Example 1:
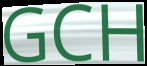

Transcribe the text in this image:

GCH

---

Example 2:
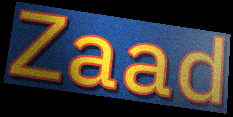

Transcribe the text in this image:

Zaad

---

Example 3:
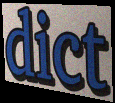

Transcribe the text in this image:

dict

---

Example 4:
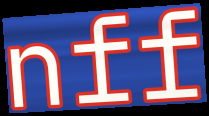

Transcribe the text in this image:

nff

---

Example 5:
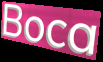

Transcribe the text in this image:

Boca